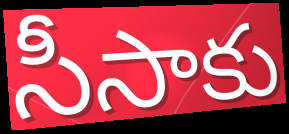
సీసాకు